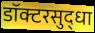
डॉक्टरसुद्धा